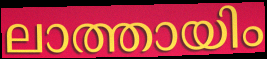
ലാത്തായിം